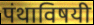
पंथाविषयी